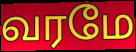
வரமே